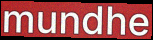
mundhe